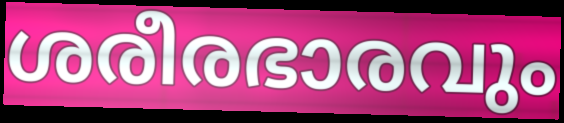
ശരീരഭാരവും